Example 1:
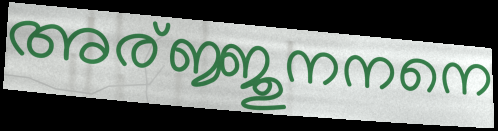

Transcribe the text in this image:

അര്ജ്ജുനനനെ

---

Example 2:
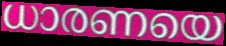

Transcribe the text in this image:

ധാരണയെ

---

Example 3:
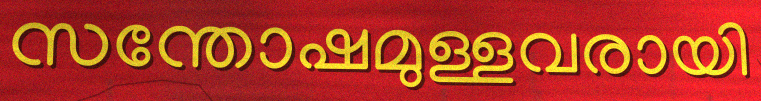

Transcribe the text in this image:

സന്തോഷമുള്ളവരായി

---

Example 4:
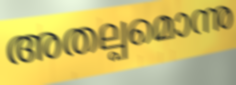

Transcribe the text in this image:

അതല്പമൊന്നു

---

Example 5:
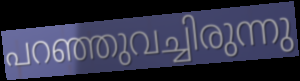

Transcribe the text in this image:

പറഞ്ഞുവച്ചിരുന്നു